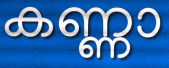
കണ്ണാ